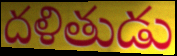
దళితుడు